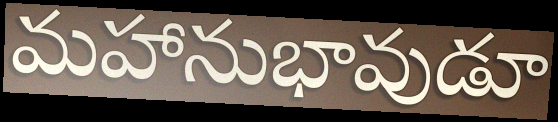
మహానుభావుడూ